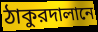
ঠাকুরদালানে